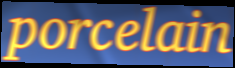
porcelain